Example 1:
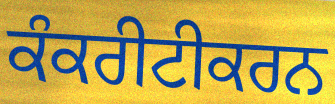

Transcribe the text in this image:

ਕੰਕਰੀਟੀਕਰਨ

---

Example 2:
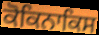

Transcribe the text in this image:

ਕੋਕਿਨਾਕਿਸ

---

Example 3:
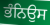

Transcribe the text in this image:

ਭੰਨਿਉਸ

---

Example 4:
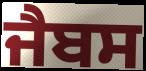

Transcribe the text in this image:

ਜੈਬਸ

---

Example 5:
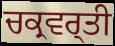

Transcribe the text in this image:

ਚਕ੍ਰਵਰ੍ਤੀ